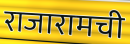
राजारामची